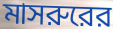
মাসরুরের